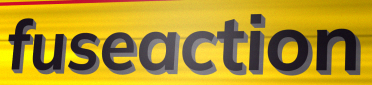
fuseaction